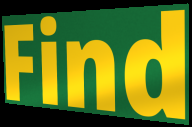
Find